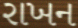
રાખન